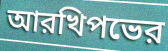
আরখিপভের